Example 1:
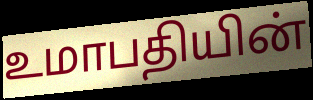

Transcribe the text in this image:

உமாபதியின்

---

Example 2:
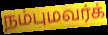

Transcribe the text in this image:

நம்புமவர்க்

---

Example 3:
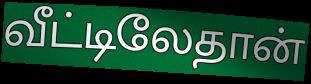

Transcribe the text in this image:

வீட்டிலேதான்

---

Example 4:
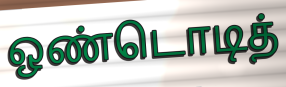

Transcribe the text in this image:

ஒண்டொடித்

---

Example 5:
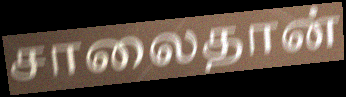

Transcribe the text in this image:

சாலைதான்